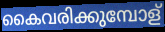
കൈവരിക്കുമ്പോള്